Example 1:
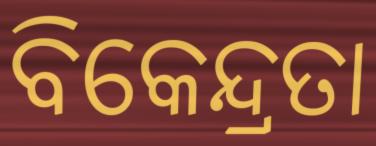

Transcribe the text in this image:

ବିକେନ୍ଦ୍ରତା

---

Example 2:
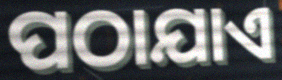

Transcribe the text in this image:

ପଠାଯାଏ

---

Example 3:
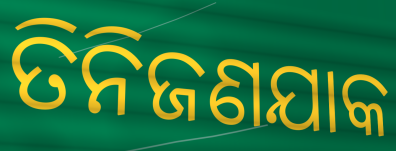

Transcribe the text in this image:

ତିନିଜଣଯାକ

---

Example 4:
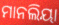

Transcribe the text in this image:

ମାନଲିୟା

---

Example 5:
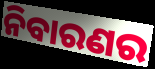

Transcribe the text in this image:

ନିବାରଣର